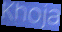
Khoja